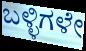
ಬಳ್ಳಿಗಳೇ